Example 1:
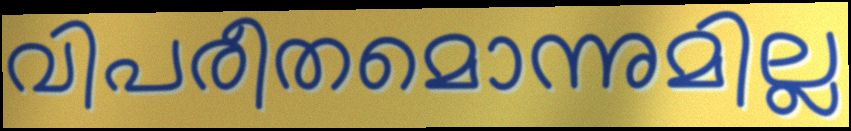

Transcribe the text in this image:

വിപരീതമൊന്നുമില്ല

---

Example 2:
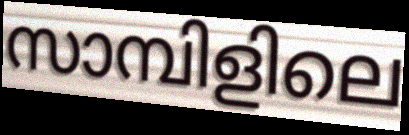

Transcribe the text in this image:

സാമ്പിളിലെ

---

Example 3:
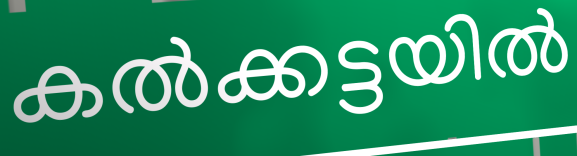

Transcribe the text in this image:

കൽക്കട്ടയിൽ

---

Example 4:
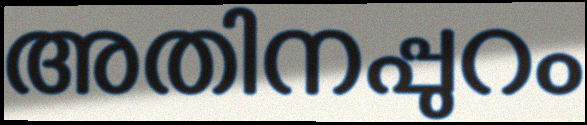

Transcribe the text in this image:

അതിനപ്പുറം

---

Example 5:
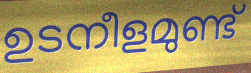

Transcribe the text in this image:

ഉടനീളമുണ്ട്